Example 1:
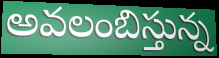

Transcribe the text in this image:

అవలంబిస్తున్న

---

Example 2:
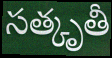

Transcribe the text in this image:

సత్కృతీ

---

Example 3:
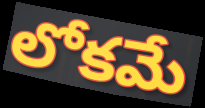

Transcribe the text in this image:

లోకమే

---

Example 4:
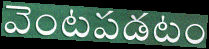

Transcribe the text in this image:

వెంటపడటం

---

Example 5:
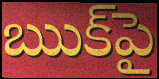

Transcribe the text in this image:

ఋక్‌పై